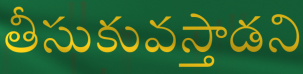
తీసుకువస్తాడని